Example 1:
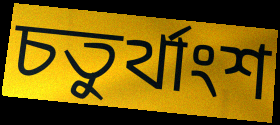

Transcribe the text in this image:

চতুৰ্থাংশ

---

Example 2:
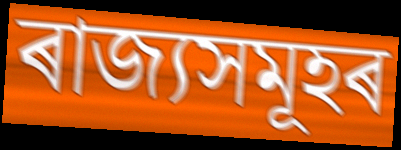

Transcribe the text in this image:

ৰাজ্যসমূহৰ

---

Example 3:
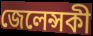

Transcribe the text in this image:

জেলেন্সকী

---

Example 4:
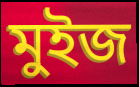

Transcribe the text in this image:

মুইজ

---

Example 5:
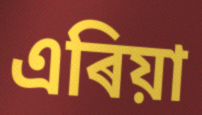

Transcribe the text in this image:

এৰিয়া